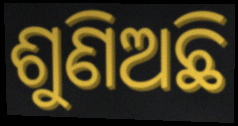
ଶୁଣିଅଛି